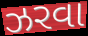
ઝરવા